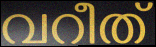
വറീത്